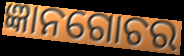
ଜ୍ଞାନଗୋଚର